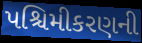
પશ્ચિમીકરણની